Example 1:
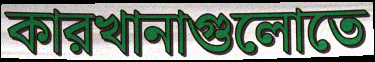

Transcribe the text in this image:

কারখানাগুলোতে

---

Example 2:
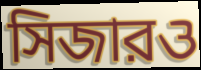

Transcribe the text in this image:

সিজারও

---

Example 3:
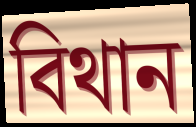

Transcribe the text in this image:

বিথান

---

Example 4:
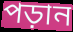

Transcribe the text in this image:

পড়ান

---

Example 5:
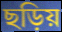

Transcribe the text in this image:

ছড়িয়